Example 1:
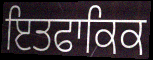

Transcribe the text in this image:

ਇਤਫਾਕਿਕ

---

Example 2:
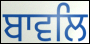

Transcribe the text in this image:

ਬਾਵਲਿ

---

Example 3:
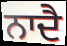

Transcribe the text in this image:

ਨਾਦੈ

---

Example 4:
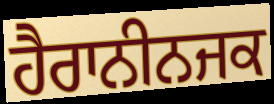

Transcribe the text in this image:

ਹੈਰਾਨੀਨਜਕ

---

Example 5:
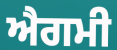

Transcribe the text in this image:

ਐਗਮੀ